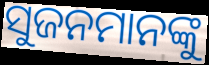
ସୁଜନମାନଙ୍କୁ